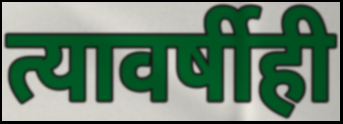
त्यावर्षीही